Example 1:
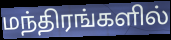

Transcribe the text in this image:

மந்திரங்களில்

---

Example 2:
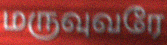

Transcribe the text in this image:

மருவுவரே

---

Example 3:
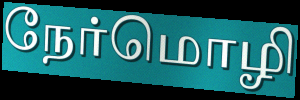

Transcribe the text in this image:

நேர்மொழி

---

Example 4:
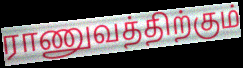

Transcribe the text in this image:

ராணுவத்திற்கும்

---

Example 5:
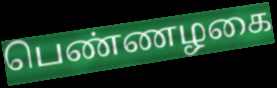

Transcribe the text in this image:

பெண்ணழகை